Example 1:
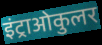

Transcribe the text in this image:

इंट्राओकुलर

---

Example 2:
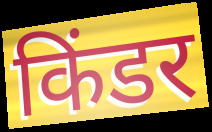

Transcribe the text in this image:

किंडर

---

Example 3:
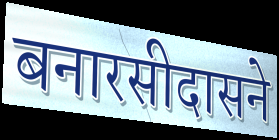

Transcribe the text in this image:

बनारसीदासने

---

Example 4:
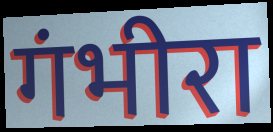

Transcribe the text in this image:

गंभीरा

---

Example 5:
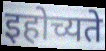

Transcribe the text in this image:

इहोच्यते